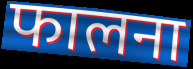
फालना